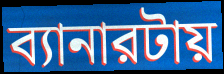
ব্যানারটায়